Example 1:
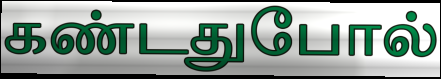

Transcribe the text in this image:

கண்டதுபோல்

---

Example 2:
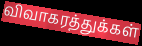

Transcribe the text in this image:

விவாகரத்துக்கள்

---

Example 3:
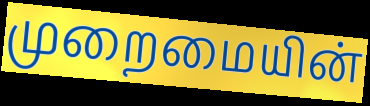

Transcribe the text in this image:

முறைமையின்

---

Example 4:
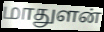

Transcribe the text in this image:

மாதுளன்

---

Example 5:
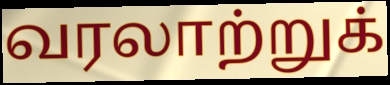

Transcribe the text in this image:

வரலாற்றுக்